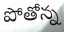
పోతోన్న